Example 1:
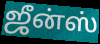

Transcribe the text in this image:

ஜீன்ஸ்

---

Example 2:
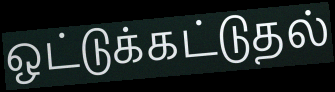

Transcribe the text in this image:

ஒட்டுக்கட்டுதல்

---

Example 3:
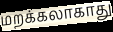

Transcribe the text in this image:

மறக்கலாகாது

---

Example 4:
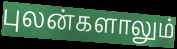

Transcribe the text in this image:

புலன்களாலும்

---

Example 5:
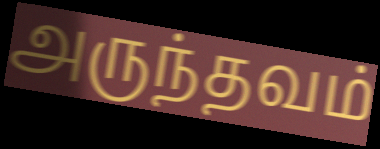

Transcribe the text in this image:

அருந்தவம்